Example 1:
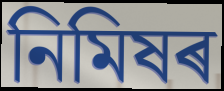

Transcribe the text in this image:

নিমিষৰ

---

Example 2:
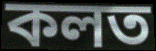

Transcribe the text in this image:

কলত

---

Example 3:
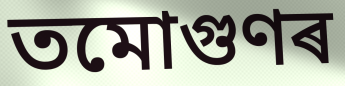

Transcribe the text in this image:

তমোগুণৰ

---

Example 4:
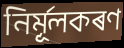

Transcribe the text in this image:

নিৰ্মূলকৰণ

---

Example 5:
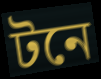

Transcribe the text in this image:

টনে